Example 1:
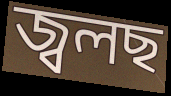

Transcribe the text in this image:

জ্বলছ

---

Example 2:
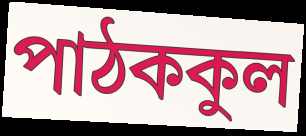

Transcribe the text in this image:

পাঠককুল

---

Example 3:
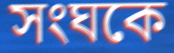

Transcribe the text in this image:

সংঘকে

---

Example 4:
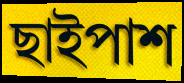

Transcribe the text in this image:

ছাইপাশ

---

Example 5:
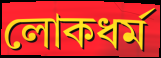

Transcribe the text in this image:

লোকধর্ম